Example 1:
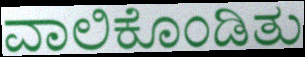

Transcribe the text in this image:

ವಾಲಿಕೊಂಡಿತು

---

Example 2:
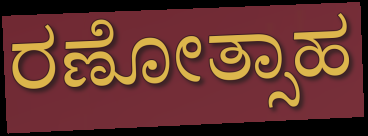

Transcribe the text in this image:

ರಣೋತ್ಸಾಹ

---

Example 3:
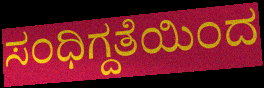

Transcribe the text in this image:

ಸಂಧಿಗ್ದತೆಯಿಂದ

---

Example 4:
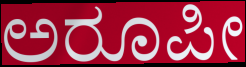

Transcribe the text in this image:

ಅರೂಪೀ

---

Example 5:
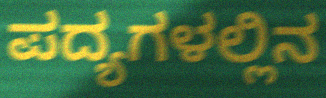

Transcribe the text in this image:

ಪದ್ಯಗಳಲ್ಲಿನ